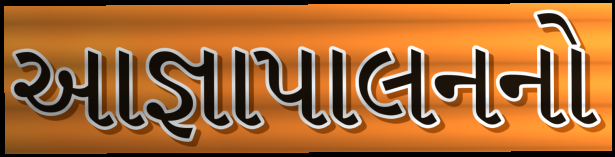
આજ્ઞાપાલનનો